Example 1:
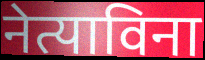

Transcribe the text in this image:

नेत्याविना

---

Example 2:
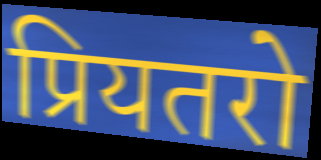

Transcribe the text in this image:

प्रियतरो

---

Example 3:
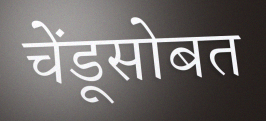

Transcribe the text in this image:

चेंडूसोबत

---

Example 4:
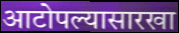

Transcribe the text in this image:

आटोपल्यासारखा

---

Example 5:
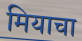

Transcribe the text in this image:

मियाचा